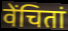
वेंचितां